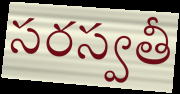
సరస్వతీ